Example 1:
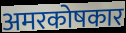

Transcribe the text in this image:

अमरकोषकार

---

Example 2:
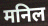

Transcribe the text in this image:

मनिल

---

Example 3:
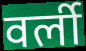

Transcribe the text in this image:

वर्ली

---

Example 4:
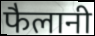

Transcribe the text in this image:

फैलानी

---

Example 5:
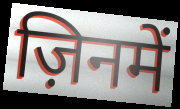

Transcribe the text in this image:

ज़िनमें